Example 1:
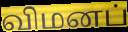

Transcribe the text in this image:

விமனப்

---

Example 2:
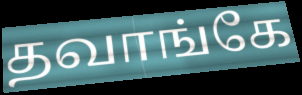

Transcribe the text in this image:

தவாங்கே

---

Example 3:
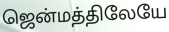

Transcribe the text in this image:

ஜென்மத்திலேயே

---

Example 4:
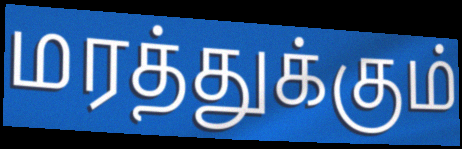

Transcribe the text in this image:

மரத்துக்கும்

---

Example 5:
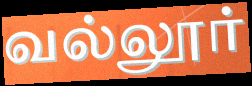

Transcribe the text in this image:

வல்லூர்